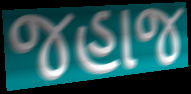
જહાજ